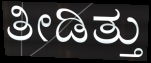
ತೀಡಿತ್ತು